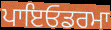
ਪਾਇਓਡਰਮਾ